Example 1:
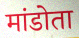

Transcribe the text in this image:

मांडोता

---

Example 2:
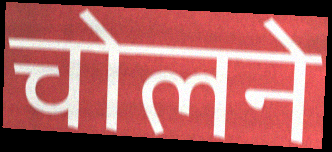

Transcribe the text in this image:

चोलने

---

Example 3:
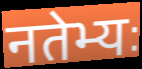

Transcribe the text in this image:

नतेभ्यः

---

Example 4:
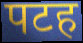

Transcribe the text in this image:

पटह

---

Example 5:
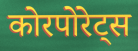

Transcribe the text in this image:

कोरपोरेट्स